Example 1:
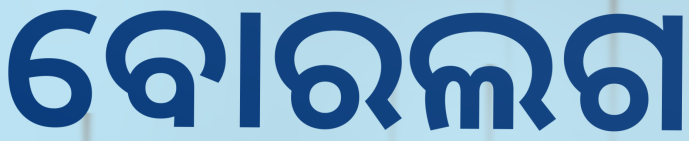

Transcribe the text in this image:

ବୋରଲଗ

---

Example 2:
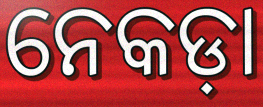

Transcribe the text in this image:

ନେକଡ଼ା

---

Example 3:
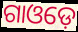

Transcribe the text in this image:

ଗାଓଡ଼େ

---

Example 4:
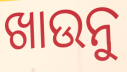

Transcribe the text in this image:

ଖାଉନୁ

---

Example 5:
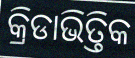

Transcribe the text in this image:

କ୍ରିଡାଭିତ୍ତିକ